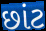
છાંટ